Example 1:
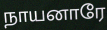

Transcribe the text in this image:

நாயனாரே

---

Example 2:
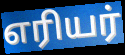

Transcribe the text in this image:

எரியர்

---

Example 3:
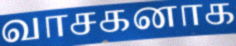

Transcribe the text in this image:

வாசகனாக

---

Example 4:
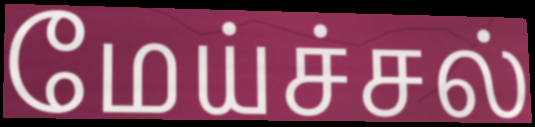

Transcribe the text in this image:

மேய்ச்சல்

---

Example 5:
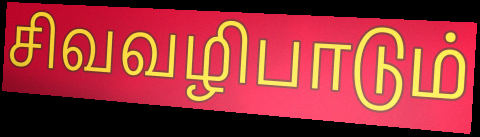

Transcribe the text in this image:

சிவவழிபாடும்